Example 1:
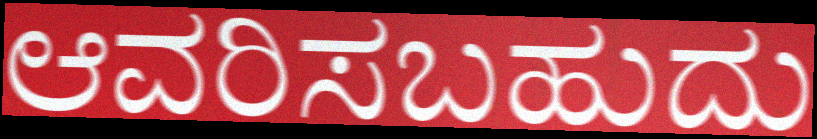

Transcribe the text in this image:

ಆವರಿಸಬಹುದು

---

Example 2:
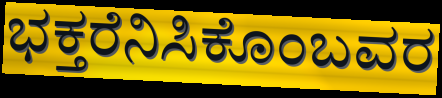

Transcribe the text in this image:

ಭಕ್ತರೆನಿಸಿಕೊಂಬವರ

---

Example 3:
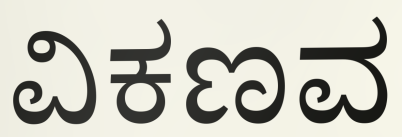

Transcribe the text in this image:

ವಿಕಣವ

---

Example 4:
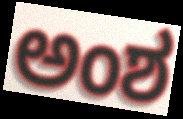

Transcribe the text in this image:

ಅಂಶ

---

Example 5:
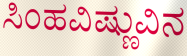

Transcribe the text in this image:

ಸಿಂಹವಿಷ್ಣುವಿನ